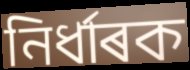
নিৰ্ধাৰক